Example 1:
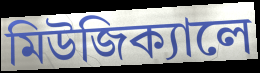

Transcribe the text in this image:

মিউজিক্যালে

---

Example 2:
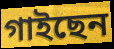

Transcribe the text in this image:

গাইছেন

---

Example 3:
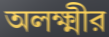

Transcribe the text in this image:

অলক্ষ্মীর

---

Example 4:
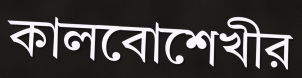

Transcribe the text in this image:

কালবোশেখীর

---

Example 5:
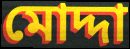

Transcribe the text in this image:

মোদ্দা